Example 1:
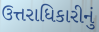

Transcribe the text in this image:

ઉત્તરાધિકારીનું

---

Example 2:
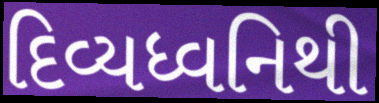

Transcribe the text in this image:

દિવ્યધ્વનિથી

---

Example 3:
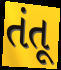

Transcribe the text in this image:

તંતૂ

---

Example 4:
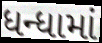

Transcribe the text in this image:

ધન્ધામાં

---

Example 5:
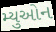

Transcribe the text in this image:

મ્યુઓન